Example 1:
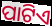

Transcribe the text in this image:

ପାଟିଏ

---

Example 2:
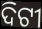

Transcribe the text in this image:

ଦିଟୀ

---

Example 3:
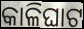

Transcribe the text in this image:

କାଳିଘାଟ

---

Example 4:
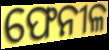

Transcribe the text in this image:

ଫେନୀଳ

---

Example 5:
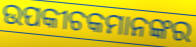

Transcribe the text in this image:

ଉପକୀଚକମାନଙ୍କର